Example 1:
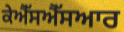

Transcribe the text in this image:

ਕੇਐੱਸਐੱਸਆਰ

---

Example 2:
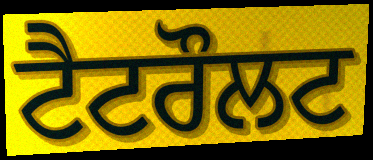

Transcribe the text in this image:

ਟੈਟਰੌਲਟ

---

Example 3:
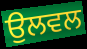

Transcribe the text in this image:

ਉਲਵਲ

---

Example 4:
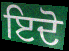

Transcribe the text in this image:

ਇਦੋ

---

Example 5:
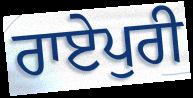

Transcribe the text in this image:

ਰਾਏਪੁਰੀ